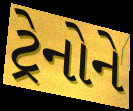
ટ્રેનોને